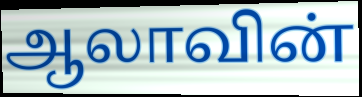
ஆலாவின்